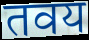
तवय